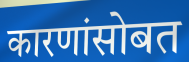
कारणांसोबत